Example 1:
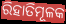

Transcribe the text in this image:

ରିହାତିମୂଳକ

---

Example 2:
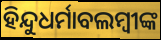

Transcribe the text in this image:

ହିନ୍ଦୁଧର୍ମାବଲମ୍ବୀଙ୍କ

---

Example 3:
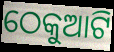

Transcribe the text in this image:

ଠେକୁଆଟି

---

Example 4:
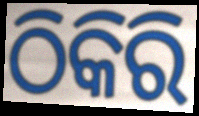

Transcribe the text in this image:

ଠିକିରି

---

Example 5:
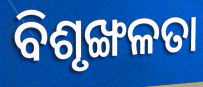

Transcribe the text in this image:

ବିଶୃଙ୍ଖଳତା